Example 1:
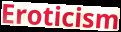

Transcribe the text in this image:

Eroticism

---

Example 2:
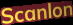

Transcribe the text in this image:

Scanlon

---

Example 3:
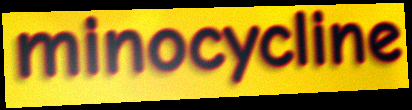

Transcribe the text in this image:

minocycline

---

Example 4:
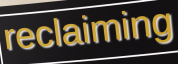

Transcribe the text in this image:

reclaiming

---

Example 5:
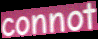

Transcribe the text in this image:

connot